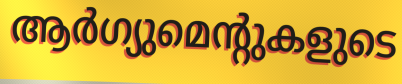
ആർഗ്യുമെന്റുകളുടെ